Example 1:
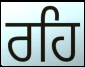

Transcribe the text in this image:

ਰਹਿ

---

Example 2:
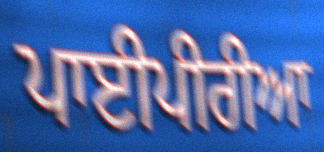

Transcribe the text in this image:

ਪਾਈਪੀਰੀਆ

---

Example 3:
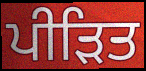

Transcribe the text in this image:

ਪੀੜਿਤ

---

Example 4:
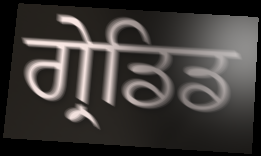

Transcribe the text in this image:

ਗ੍ਰੇਡਿਡ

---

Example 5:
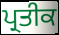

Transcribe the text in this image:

ਪ੍ਰਤੀਕ